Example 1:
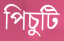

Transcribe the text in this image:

পিচুটি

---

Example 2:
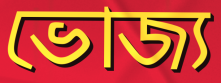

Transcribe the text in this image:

ভোজ্য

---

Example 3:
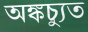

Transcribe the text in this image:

অঙ্কচ্যুত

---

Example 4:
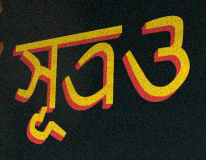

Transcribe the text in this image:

সূত্রও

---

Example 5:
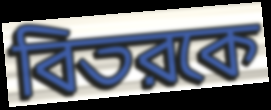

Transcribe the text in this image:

বিতরকে